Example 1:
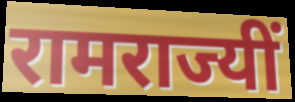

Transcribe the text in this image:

रामराज्यीं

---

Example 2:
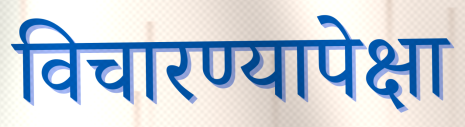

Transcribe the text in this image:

विचारण्यापेक्षा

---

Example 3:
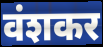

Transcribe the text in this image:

वंशकर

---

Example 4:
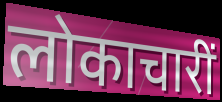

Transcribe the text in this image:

लोकाचारीं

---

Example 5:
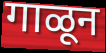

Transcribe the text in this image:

गाळून